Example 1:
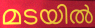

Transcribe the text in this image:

മടയിൽ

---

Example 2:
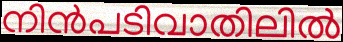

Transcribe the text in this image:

നിൻപടിവാതിലിൽ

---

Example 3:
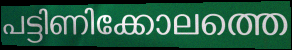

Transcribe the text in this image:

പട്ടിണിക്കോലത്തെ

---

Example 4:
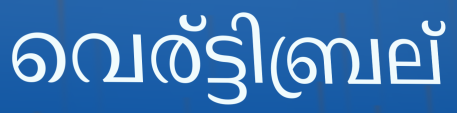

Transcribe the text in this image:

വെര്ട്ടിബ്രല്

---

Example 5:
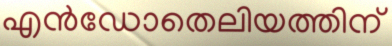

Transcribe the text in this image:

എൻഡോതെലിയത്തിന്